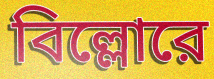
বিল্লোরে